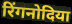
रिंगनोदिया